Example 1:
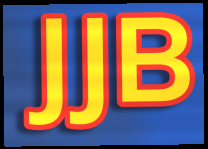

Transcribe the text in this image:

JJB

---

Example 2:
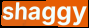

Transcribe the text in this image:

shaggy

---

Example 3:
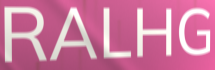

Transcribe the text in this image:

RALHG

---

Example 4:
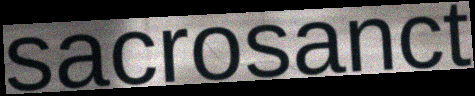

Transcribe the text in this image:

sacrosanct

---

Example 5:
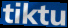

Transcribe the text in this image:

tiktu